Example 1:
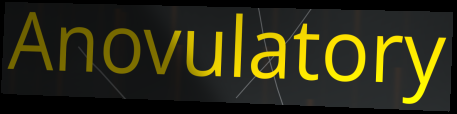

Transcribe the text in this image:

Anovulatory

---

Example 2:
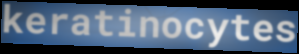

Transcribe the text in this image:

keratinocytes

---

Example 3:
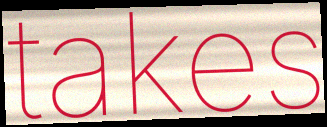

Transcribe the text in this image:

takes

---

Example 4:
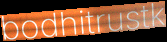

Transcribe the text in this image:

bodhitrustk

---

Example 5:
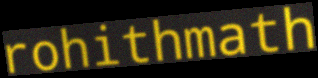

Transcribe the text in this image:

rohithmath